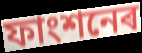
ফাংশনেৰ